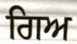
ਗਿਅ